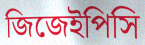
জিজেইপিসি